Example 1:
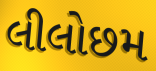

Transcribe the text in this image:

લીલોછમ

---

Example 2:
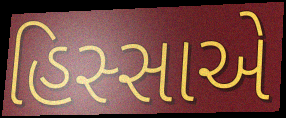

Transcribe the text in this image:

હિસ્સાએ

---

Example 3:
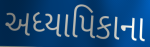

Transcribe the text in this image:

અધ્યાપિકાના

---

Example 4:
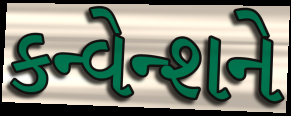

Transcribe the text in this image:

કન્વેન્શને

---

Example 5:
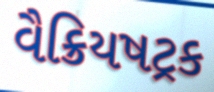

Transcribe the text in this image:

વૈક્રિયષટ્રક